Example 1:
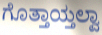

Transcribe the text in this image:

ಗೊತ್ತಾಯ್ತಲ್ವಾ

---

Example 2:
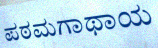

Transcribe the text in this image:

ಪಠಮಗಾಥಾಯ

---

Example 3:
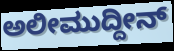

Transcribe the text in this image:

ಅಲೀಮುದ್ದೀನ್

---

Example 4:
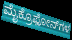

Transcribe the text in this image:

ಮೈಕ್ರೊಫೋನ್‌ಗಳ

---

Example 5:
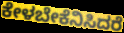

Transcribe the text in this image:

ಕೇಳಬೇಕೆನಿಸಿದರೆ